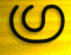
ഗ്ര